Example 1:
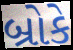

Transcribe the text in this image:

બ્રોકે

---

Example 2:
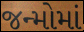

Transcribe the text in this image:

જન્મોમાં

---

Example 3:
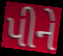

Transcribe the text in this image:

પીને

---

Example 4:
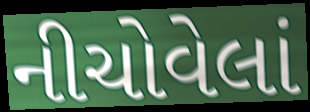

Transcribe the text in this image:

નીચોવેલાં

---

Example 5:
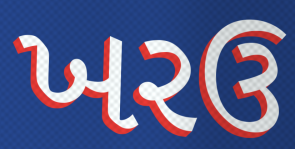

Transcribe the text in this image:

ખરઉ